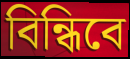
বিন্ধিবে